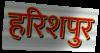
हरिशपुर